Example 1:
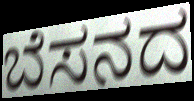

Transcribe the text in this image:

ಬೆಸನದ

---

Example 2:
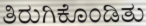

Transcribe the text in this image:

ತಿರುಗಿಕೊಂಡಿತು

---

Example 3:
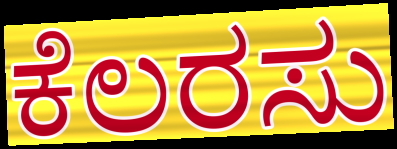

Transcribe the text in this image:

ಕೆಲರಸು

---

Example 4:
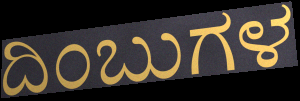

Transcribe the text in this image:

ದಿಂಬುಗಳ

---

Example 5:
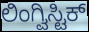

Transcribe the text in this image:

ಲಿಂಗ್ವಿಸ್ಟಿಕ್